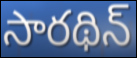
సారథిన్